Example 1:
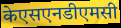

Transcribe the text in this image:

केएसएनडीएमसी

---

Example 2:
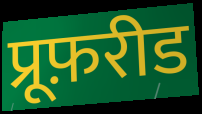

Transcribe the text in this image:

प्रूफ़रीड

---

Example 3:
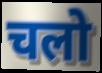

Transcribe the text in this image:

चलो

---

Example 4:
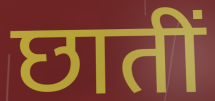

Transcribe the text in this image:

छातीं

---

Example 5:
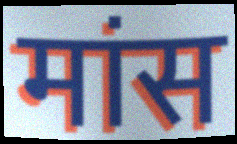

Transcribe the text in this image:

मांस